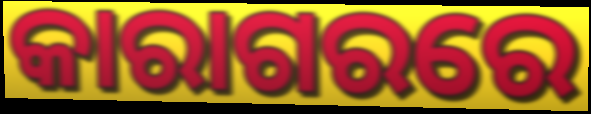
କାରାଗରରେ